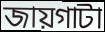
জায়গাটা